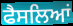
ਫੈਸਲਿਆਂ